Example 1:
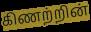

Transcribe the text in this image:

கிணற்றின்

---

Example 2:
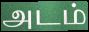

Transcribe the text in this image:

அடம்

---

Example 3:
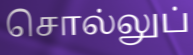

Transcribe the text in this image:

சொல்லுப்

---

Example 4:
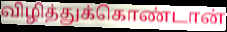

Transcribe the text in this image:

விழித்துக்கொண்டான்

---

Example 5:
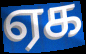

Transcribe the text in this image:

ஏக